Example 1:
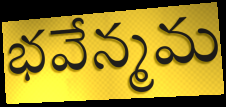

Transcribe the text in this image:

భవేన్మమ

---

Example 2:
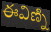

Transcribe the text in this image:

ఈవిణ్ని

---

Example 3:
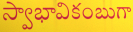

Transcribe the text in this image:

స్వాభావికంబుగా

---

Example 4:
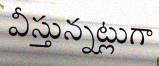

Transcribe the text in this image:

వీస్తున్నట్లుగా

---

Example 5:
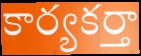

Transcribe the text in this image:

కార్యకర్తా